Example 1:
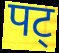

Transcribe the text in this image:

पट्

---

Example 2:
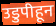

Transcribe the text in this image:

उडुपीहून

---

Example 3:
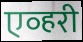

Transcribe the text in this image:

एव्हरी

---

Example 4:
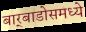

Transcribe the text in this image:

बार्बाडोसमध्ये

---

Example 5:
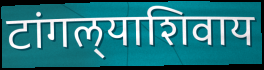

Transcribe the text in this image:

टांगल्याशिवाय